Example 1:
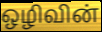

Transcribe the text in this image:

ஒழிவின்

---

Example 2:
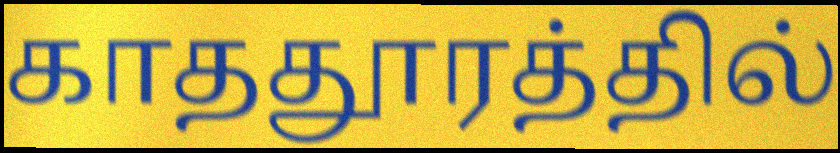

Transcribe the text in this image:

காததூரத்தில்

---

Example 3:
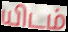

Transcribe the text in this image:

யிடம்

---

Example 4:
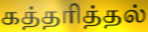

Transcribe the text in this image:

கத்தரித்தல்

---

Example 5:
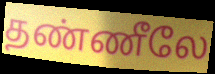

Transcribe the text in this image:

தண்ணீலே